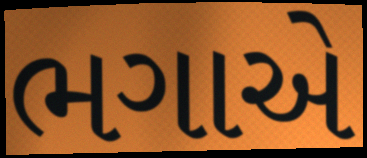
ભગાએ